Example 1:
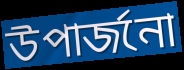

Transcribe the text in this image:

উপাৰ্জনো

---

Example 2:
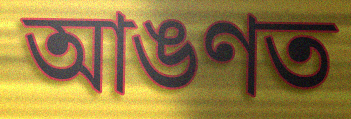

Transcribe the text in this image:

আঙণত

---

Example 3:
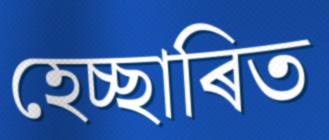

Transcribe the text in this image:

হেচ্ছাৰিত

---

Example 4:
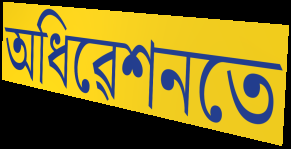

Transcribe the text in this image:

অধিৱেশনতে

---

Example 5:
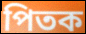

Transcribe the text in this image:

পিতক